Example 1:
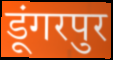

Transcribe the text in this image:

डूंगरपुर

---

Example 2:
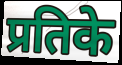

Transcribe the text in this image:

प्रतिके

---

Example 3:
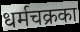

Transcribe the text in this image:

धर्मचक्रका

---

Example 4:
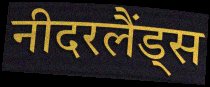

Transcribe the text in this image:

नीदरलैंड्स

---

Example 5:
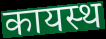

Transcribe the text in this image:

कायस्थ